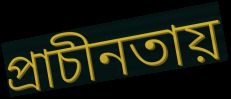
প্রাচীনতায়